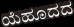
ಯೆಹೂದದ